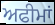
ਅਫੀਮਾਂ